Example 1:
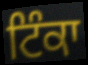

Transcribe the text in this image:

ਟਿੰਕਾ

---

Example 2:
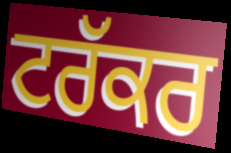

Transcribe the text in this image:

ਟਰੱਕਰ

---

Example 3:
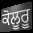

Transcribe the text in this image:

ਕੋਲੂਰੂ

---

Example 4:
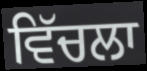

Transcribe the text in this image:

ਵਿੱਚਲਾ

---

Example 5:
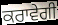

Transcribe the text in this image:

ਕਰਾਵੇਗੀ